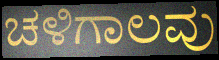
ಚಳಿಗಾಲವು